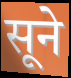
सूने